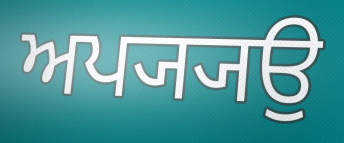
ਅਪ੍ਯ੍ਯਉ